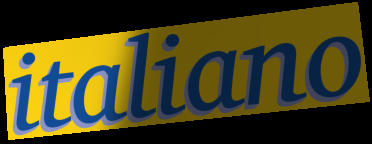
italiano